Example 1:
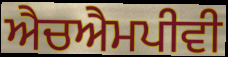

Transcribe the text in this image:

ਐਚਐਮਪੀਵੀ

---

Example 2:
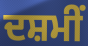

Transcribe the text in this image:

ਦਸ਼ਮੀਂ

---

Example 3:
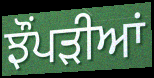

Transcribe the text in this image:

ਝੌਂਪੜੀਆਂ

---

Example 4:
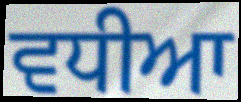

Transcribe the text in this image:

ਵਧੀਆ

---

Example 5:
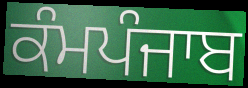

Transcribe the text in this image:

ਕੰਮਪੰਜਾਬ